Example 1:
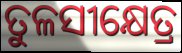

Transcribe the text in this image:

ତୁଳସୀକ୍ଷେତ୍ର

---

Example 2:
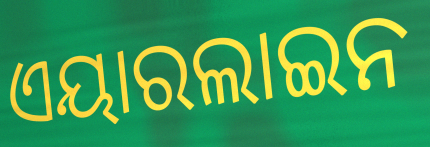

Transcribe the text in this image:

ଏୟାରଲାଇନ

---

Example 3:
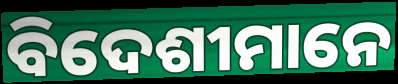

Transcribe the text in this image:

ବିଦେଶୀମାନେ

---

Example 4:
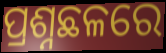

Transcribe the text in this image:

ପ୍ରଶ୍ନଛଳରେ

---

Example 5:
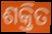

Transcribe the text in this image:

ଶକ୍ତିତ